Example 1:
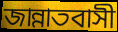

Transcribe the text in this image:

জান্নাতবাসী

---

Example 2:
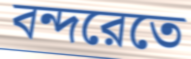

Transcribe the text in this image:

বন্দরেতে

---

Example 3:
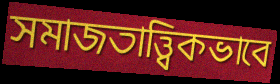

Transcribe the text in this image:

সমাজতাত্ত্বিকভাবে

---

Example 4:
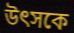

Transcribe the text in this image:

উৎসকে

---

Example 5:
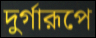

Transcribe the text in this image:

দুর্গারূপে